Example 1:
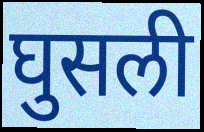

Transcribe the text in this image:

घुसली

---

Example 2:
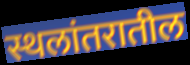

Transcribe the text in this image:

स्थलांतरातील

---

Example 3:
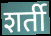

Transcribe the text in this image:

शर्ती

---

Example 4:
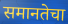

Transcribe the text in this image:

समानतेचा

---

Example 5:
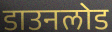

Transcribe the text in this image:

डाउनलोड